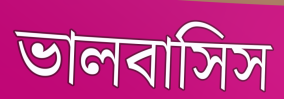
ভালবাসিস